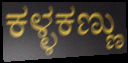
ಕಳ್ಳಕಣ್ಣು